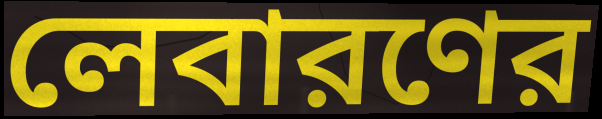
লেবারণের